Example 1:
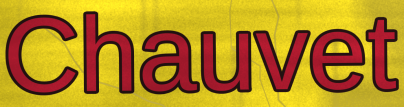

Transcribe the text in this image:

Chauvet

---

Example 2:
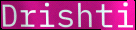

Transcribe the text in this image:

Drishti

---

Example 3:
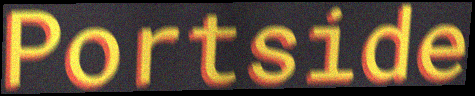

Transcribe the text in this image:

Portside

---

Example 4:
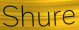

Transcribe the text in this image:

Shure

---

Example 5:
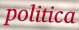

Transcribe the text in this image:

politica